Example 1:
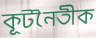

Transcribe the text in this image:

কূটনৈতীক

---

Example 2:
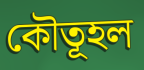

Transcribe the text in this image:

কৌতূহল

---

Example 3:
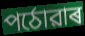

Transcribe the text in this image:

পঠোৱাৰ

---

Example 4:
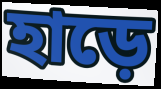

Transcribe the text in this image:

হাড়ে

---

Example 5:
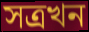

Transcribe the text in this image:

সত্ৰখন